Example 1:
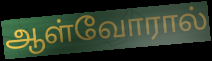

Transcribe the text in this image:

ஆள்வோரால்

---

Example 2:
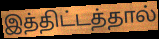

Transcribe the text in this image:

இத்திட்டத்தால்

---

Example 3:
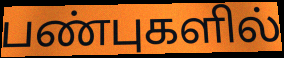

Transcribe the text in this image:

பண்புகளில்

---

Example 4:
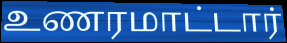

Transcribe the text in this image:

உணரமாட்டார்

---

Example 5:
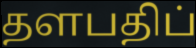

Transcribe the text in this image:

தளபதிப்